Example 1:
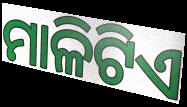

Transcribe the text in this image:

ମାଳିଟିଏ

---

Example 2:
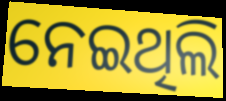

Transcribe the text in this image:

ନେଇଥିଲି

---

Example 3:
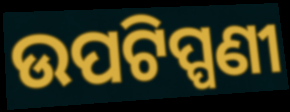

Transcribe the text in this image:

ଉପଟିପ୍ପଣୀ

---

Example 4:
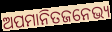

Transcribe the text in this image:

ଅପମାନିତଜନେଭ୍ୟ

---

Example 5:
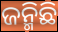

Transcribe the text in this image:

ଜନ୍ମିଛି